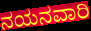
ನಯನವಾರಿ